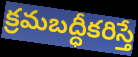
క్రమబద్ధీకరిస్తే